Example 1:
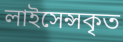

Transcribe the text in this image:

লাইসেন্সকৃত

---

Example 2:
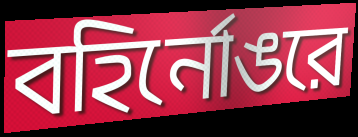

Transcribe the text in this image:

বহির্নোঙরে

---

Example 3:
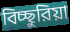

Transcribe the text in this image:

বিচ্ছুরিয়া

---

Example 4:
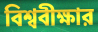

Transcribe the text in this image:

বিশ্ববীক্ষার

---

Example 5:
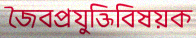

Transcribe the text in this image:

জৈবপ্রযুক্তিবিষয়ক